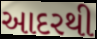
આદરથી